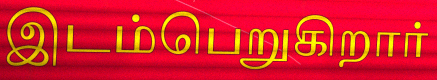
இடம்பெறுகிறார்